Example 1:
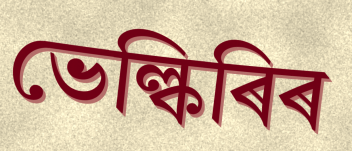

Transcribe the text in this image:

ভেল্কিৰিৰ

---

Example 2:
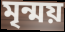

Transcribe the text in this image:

মৃন্ময়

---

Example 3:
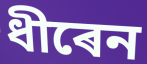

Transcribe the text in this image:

ধীৰেন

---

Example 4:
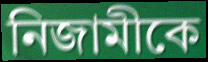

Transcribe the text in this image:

নিজামীকে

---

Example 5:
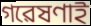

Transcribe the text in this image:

গৱেষণাই